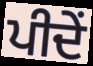
ਪੀਦੇਂ